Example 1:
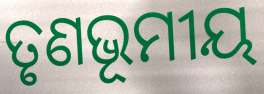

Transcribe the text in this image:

ତୃଣଭୂମୀୟ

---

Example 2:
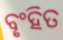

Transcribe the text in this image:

ବୃଂହିତ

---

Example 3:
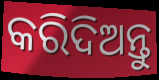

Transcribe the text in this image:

କରିଦିଅନ୍ତୁ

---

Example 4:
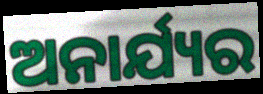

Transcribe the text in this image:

ଅନାର୍ଯ୍ୟର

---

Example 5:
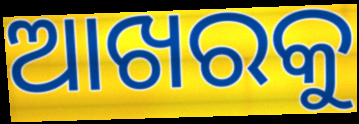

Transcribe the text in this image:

ଆଖରକୁ